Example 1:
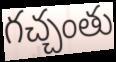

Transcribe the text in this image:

గచ్చంతు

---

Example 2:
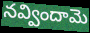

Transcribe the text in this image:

నవ్విందామె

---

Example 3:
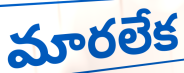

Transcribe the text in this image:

మారలేక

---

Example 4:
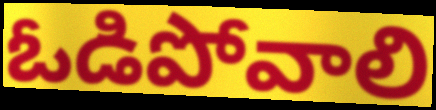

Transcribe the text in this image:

ఓడిపోవాలి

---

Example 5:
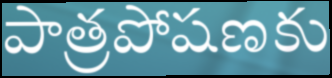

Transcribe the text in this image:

పాత్రపోషణకు